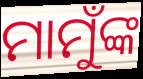
ମାମୁଁଙ୍କ